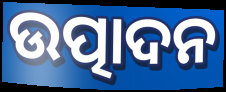
ଉତ୍ପାଦନ